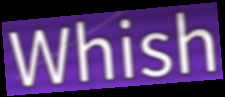
Whish